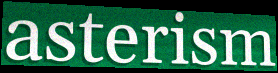
asterism